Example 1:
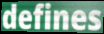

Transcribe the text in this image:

defines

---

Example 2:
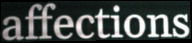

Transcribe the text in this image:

affections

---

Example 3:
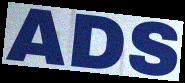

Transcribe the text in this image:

ADS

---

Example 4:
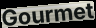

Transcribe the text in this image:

Gourmet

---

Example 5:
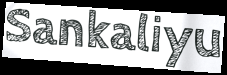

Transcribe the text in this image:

Sankaliyu